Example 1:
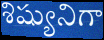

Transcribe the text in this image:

శిష్యునిగా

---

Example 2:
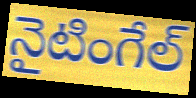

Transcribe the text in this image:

నైటింగేల్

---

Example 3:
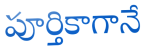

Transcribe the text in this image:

పూర్తికాగానే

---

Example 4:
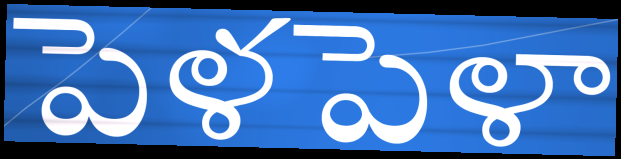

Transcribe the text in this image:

పెళపెళా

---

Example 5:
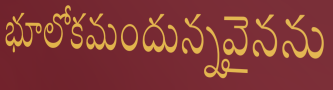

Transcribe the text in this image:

భూలోకమందున్నవైనను